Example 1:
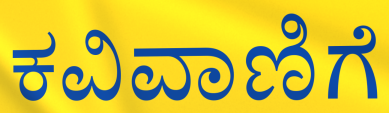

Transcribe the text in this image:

ಕವಿವಾಣಿಗೆ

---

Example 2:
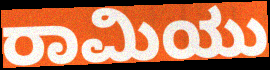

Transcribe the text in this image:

ರಾಮಿಯು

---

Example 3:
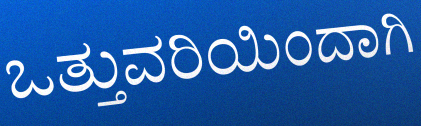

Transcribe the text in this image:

ಒತ್ತುವರಿಯಿಂದಾಗಿ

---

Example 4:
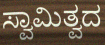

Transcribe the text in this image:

ಸ್ವಾಮಿತ್ವದ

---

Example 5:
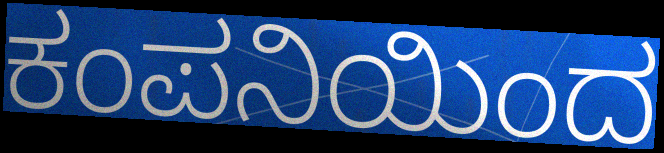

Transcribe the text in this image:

ಕಂಪನಿಯಿಂದ